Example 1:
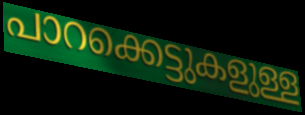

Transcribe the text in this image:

പാറക്കെട്ടുകളുള്ള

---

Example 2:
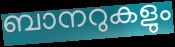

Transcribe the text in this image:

ബാനറുകളും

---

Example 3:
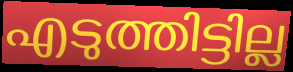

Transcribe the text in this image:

എടുത്തിട്ടില്ല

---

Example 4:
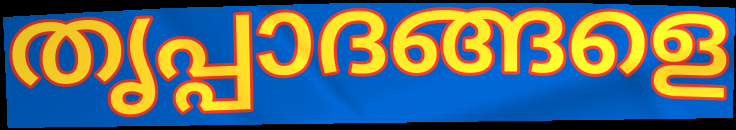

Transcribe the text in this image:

തൃപ്പാദങ്ങളെ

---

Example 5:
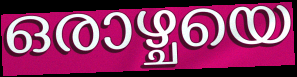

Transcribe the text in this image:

ഒരാഴ്ചയെ